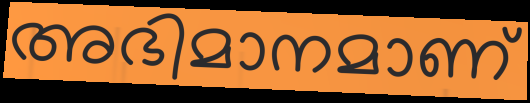
അഭിമാനമാണ്